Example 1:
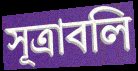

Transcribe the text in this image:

সূত্রাবলি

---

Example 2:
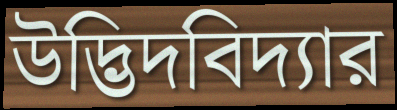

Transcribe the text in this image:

উদ্ভিদবিদ্যার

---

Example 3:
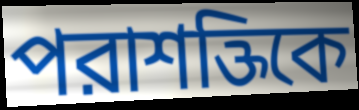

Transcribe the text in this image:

পরাশক্তিকে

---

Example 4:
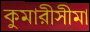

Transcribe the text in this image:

কুমারীসীমা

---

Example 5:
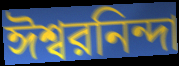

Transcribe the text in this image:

ঈশ্বরনিন্দা